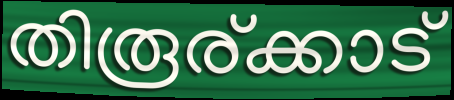
തിരൂര്ക്കാട്